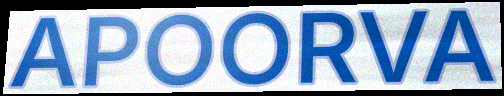
APOORVA